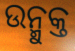
ଉନ୍ମୁକ୍ତ